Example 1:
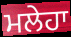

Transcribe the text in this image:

ਮਲੇਹਾ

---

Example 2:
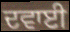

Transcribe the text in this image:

ਦਵਾਈ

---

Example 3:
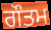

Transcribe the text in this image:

ਗੌਤਮ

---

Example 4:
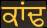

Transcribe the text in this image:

ਕਾਂਢ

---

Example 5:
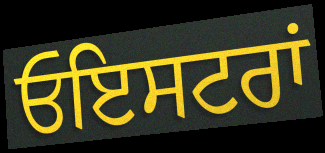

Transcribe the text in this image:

ਓਇਸਟਰਾਂ